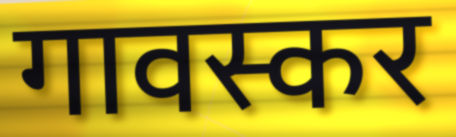
गावस्कर